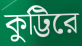
কুট্টিরে